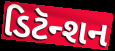
ડિટૅન્શન